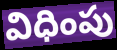
విధింపు